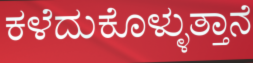
ಕಳೆದುಕೊಳ್ಳುತ್ತಾನೆ